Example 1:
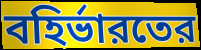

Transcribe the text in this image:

বহির্ভারতের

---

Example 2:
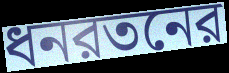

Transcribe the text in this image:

ধনরতনের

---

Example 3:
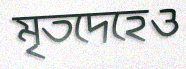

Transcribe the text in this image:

মৃতদেহেও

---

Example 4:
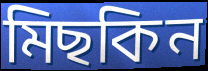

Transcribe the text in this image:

মিছকিন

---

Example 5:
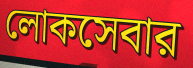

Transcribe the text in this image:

লোকসেবার